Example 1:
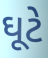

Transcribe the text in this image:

ઘૂટે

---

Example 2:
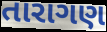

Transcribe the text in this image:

તારાગણ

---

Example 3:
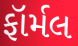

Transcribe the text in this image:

ફૉર્મલ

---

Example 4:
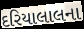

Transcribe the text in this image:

દરિયાલાલના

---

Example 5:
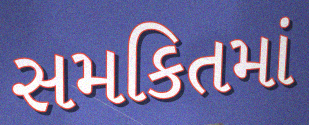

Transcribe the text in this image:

સમકિતમાં